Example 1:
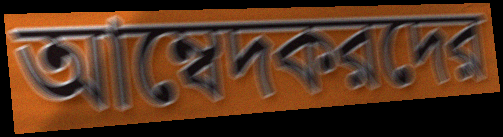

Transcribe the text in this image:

আম্বেদকরদের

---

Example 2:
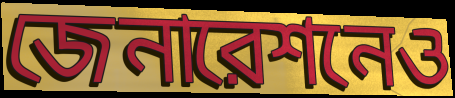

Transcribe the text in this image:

জেনারেশনেও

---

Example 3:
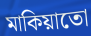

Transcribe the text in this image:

মাকিয়াতো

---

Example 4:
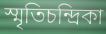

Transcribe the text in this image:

স্মৃতিচন্দ্রিকা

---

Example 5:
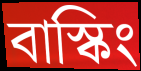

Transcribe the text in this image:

বাস্কিং